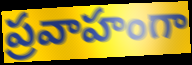
ప్రవాహంగా